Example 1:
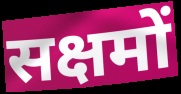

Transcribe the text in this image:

सक्षमों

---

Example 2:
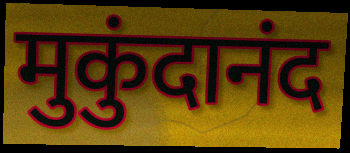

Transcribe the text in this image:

मुकुंदानंद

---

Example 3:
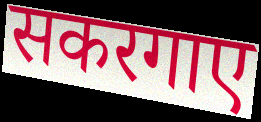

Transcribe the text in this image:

सकरगाए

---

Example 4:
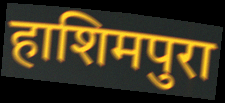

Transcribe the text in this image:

हाशिमपुरा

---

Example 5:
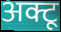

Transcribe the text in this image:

अक्टू